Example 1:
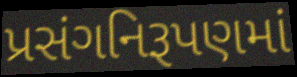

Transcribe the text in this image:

પ્રસંગનિરૂપણમાં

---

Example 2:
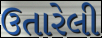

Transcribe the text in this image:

ઉતારેલી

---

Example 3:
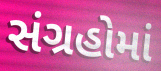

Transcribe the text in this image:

સંગ્રહોમાં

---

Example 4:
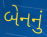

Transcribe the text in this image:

બેનનું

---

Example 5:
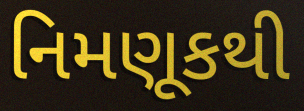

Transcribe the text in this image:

નિમણૂકથી